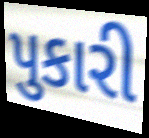
પુકારી